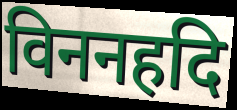
विननहदि